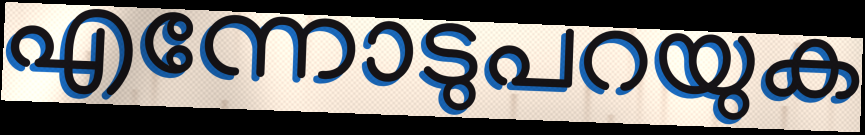
എന്നോടുപറയുക